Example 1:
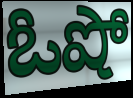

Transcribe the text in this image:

ఓషో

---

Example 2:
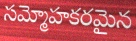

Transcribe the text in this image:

సమ్మోహకరమైన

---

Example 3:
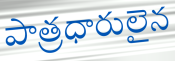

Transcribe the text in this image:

పాత్రధారులైన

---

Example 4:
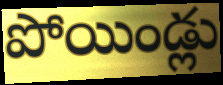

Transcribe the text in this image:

పోయిండ్లు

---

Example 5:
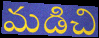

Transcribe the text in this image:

మడిచి